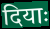
दियाः